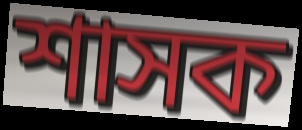
শাসক